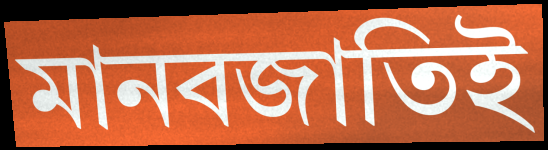
মানবজাতিই